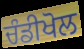
ਚੰਡੀਖੋਲ